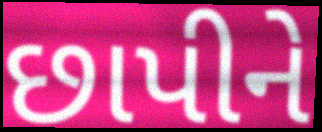
છાપીને